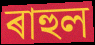
ৰাহুল